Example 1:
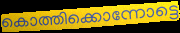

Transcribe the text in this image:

കൊത്തിക്കൊന്നോട്ടെ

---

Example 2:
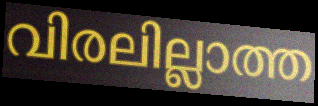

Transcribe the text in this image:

വിരലില്ലാത്ത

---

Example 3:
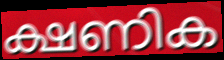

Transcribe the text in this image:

ക്ഷണിക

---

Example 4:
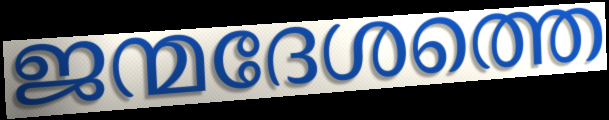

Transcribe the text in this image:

ജന്മദേശത്തെ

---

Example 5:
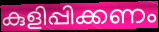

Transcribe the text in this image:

കുളിപ്പിക്കണം